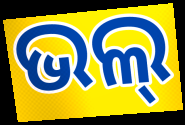
ଭଲ୍